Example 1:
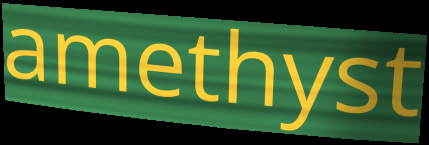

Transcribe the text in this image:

amethyst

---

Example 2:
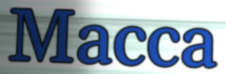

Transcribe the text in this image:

Macca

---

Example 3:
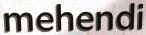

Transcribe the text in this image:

mehendi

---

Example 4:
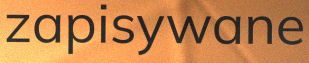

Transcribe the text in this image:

zapisywane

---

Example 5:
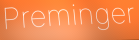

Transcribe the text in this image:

Preminger